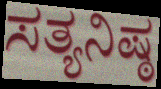
ಸತ್ಯನಿಷ್ಠ